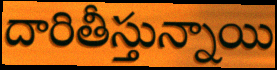
దారితీస్తున్నాయి